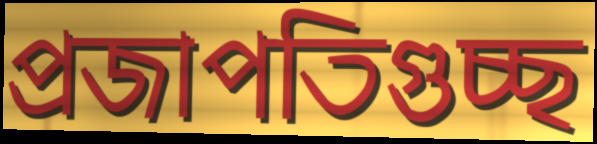
প্রজাপতিগুচ্ছ